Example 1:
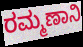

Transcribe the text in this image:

ರಮ್ಮಣಾನಿ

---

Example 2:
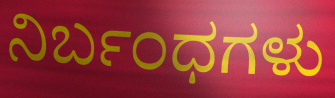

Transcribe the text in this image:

ನಿರ್ಬಂಧಗಳು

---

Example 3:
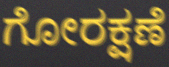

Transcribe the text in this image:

ಗೋರಕ್ಷಣೆ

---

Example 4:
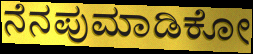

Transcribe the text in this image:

ನೆನಪುಮಾಡಿಕೋ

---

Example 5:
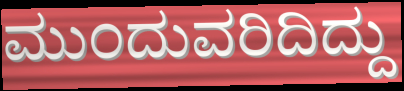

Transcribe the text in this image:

ಮುಂದುವರಿದಿದ್ದು